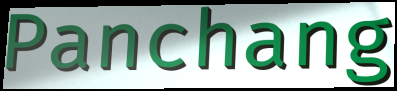
Panchang